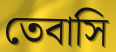
তেবাসি